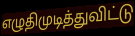
எழுதிமுடித்துவிட்டு